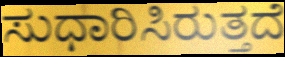
ಸುಧಾರಿಸಿರುತ್ತದೆ